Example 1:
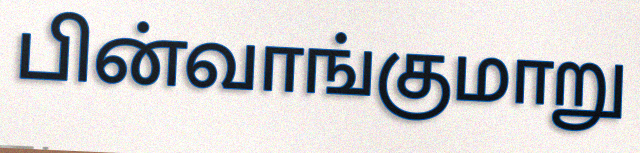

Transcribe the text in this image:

பின்வாங்குமாறு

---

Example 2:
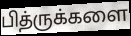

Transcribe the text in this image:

பித்ருக்களை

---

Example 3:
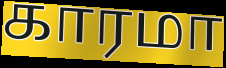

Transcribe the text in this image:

காரமா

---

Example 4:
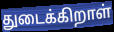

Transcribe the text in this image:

துடைக்கிறாள்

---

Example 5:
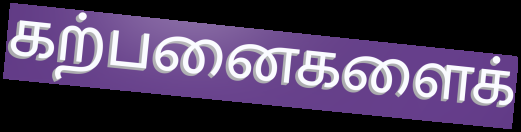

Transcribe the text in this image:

கற்பனைகளைக்